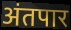
अंतपार